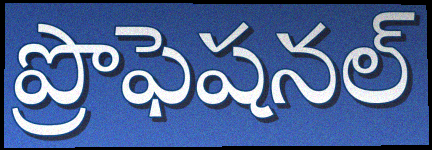
ప్రొఫెషనల్